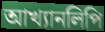
আখ্যানলিপি